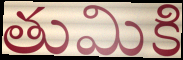
తుమికి